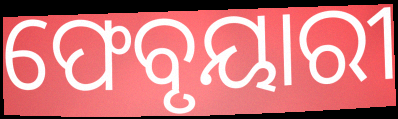
ଫେବୃୟାରୀ